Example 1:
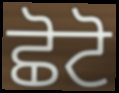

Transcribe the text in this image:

ਛੋਟੋ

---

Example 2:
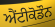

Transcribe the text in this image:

ਐਂਟੀਕੋਡੌਨ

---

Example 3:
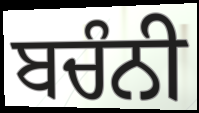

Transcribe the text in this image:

ਬਚੰਨੀ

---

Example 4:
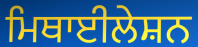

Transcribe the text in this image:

ਮਿਥਾਈਲੇਸ਼ਨ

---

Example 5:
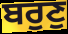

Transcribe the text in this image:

ਬਰੁਣੁ